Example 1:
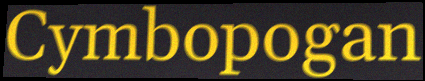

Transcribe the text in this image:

Cymbopogan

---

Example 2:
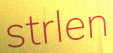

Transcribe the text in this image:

strlen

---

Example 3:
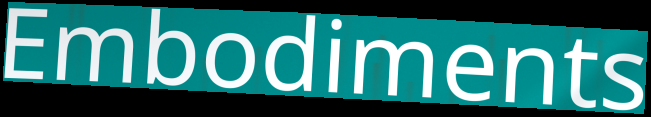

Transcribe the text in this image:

Embodiments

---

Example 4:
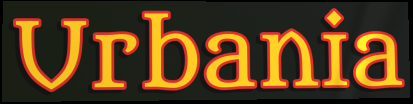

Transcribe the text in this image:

Urbania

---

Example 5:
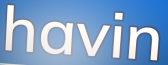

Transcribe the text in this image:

havin